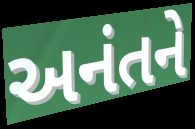
અનંતને